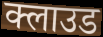
क्लाउड